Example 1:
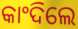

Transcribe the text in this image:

କାଂଦିଲେ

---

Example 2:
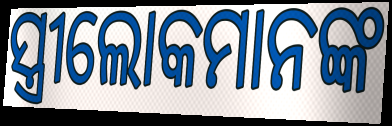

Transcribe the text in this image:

ସ୍ତ୍ରୀଲୋକମାନଙ୍କ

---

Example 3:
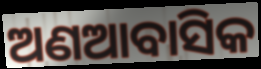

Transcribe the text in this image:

ଅଣଆବାସିକ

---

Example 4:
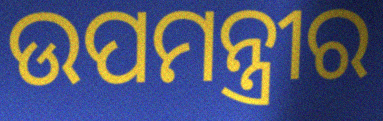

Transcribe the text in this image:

ଉପମନ୍ତ୍ରୀର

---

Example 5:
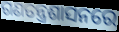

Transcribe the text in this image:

ଗଣତନ୍ତ୍ରଶାସନରେ